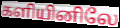
களியினிலே